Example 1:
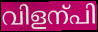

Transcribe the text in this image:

വിളന്പി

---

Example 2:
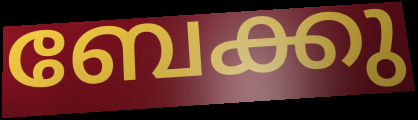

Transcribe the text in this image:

ബേക്കു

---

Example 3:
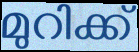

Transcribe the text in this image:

മുറിക്ക്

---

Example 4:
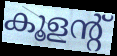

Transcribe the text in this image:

കൂളന്റ്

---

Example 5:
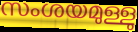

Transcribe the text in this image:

സംശയമുള്ളു